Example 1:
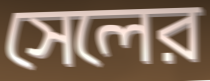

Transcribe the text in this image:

সেলের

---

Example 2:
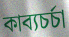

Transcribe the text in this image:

কাব্যচর্চা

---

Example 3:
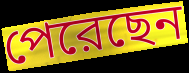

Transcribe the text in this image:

পেরেছেন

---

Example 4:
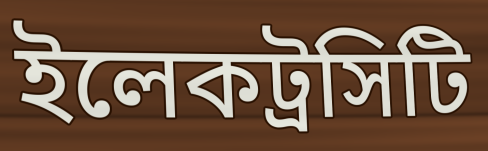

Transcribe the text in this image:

ইলেকট্রসিটি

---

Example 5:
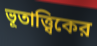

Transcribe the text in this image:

ভূতাত্ত্বিকের